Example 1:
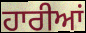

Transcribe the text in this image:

ਹਾਰੀਆਂ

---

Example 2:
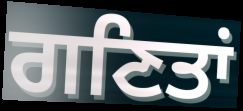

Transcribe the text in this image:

ਗਣਿਤਾਂ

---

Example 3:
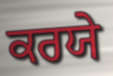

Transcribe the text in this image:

ਕਰਯੇ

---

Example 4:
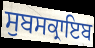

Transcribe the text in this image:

ਸੁਬਸਕ੍ਰਾਇਬ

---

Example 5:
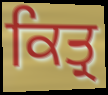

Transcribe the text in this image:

ਕਿਤ੍ਰ